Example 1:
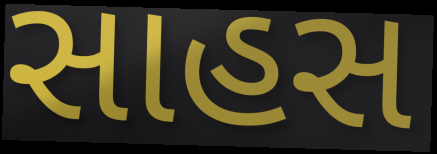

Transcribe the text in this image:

સાહસ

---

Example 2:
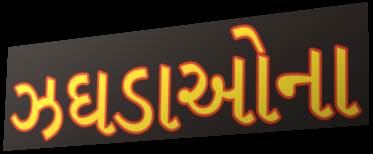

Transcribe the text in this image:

ઝઘડાઓના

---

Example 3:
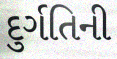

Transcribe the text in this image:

દુર્ગતિની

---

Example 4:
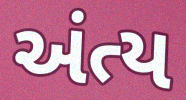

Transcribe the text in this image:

અંત્ય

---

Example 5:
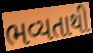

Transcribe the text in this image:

ભવ્યતાથી